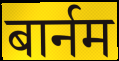
बार्नम